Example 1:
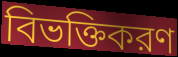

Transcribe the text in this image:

বিভক্তিকরণ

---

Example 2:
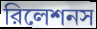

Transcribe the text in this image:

রিলেশনস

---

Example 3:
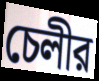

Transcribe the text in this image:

চেলীর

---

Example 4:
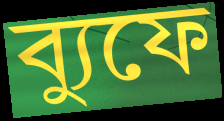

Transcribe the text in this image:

ব্যুফে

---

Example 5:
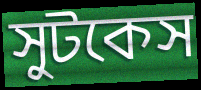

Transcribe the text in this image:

সুটকেস